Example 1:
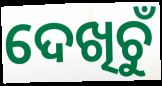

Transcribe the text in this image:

ଦେଖିଚୁଁ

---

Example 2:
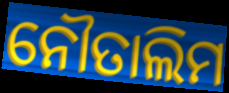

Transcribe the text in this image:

ନୌତାଲିମ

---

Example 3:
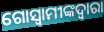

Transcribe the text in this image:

ଗୋସ୍ୱାମୀଙ୍କଦ୍ୱାରା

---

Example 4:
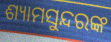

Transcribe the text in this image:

ଶ୍ୟାମସୁନ୍ଦରଙ୍କ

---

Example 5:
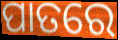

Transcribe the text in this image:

ପାତରେ